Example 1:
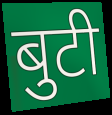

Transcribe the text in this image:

बुटी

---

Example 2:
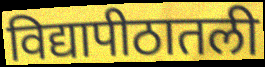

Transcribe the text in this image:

विद्यापीठातली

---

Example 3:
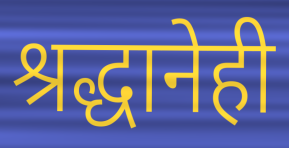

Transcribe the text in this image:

श्रद्धानेही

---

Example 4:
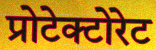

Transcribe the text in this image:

प्रोटेक्टोरेट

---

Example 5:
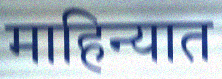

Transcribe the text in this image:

माहिन्यात